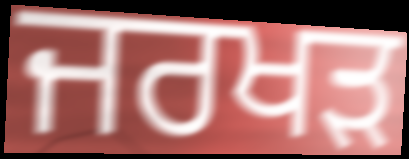
ਜਰਖੜ